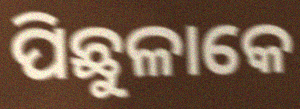
ପିଛୁଳାକେ